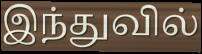
இந்துவில்